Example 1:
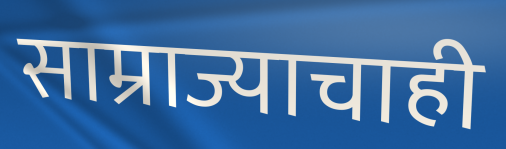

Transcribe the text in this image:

साम्राज्याचाही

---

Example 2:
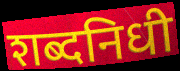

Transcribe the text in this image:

शब्दनिधी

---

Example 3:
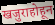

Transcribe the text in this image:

खजुराहोहून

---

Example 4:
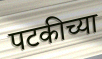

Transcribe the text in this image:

पटकीच्या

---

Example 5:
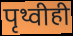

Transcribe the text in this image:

पृथ्वीही